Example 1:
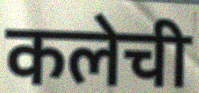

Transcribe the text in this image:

कलेची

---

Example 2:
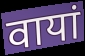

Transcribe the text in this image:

वायां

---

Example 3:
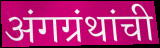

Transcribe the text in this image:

अंगग्रंथांची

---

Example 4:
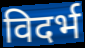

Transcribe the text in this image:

विदर्भ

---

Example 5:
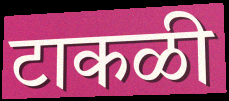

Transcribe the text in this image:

टाकळी